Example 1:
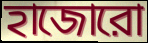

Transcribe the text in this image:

হাজোরো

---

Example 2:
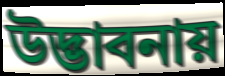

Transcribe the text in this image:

উদ্ভাবনায়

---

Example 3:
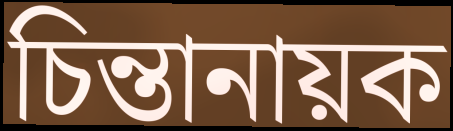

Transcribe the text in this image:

চিন্তানায়ক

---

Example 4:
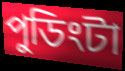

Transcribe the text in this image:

পুডিংটা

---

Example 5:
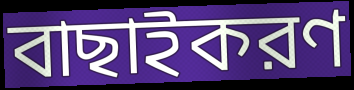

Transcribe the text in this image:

বাছাইকরণ